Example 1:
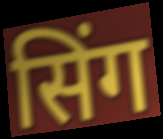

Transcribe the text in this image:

सिंग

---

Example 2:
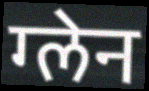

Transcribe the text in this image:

ग्लेन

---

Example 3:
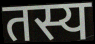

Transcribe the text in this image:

तस्य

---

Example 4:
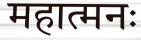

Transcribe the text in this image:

महात्मनः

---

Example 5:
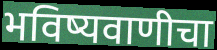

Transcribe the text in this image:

भविष्यवाणीचा